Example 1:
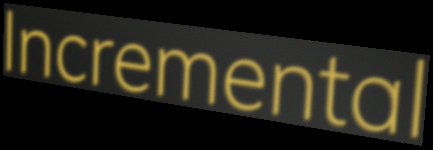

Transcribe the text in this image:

Incremental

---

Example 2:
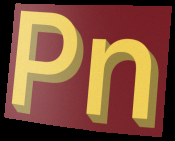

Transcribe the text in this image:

Pn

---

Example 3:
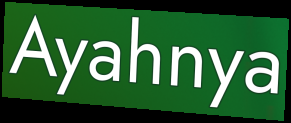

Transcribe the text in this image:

Ayahnya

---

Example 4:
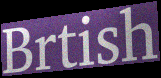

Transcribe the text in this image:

Brtish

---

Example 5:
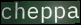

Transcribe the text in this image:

cheppa